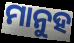
ମାନୁହ